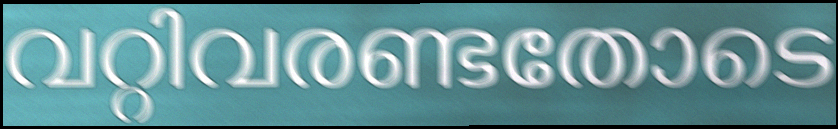
വറ്റിവരണ്ടതോടെ